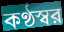
কণ্ঠস্বর